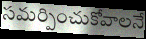
సమర్పించుకోవాలనే